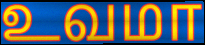
உவமா